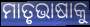
ମାତୃଭାଷାକୁ